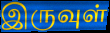
இருவுள்